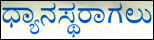
ಧ್ಯಾನಸ್ಥರಾಗಲು